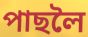
পাছলৈ